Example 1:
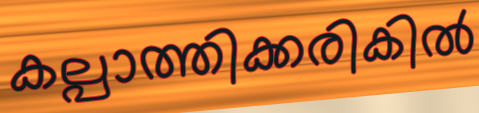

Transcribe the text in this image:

കല്പാത്തിക്കരികിൽ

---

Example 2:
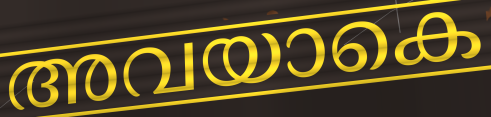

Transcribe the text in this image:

അവയാകെ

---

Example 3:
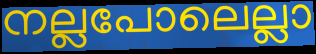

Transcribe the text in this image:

നല്ലപോലെല്ലാ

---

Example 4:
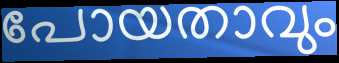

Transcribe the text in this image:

പോയതാവും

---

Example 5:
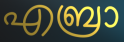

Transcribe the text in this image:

എബ്രാ